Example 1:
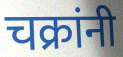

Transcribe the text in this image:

चक्रांनी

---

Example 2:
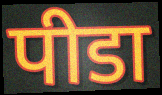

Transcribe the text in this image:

पीडा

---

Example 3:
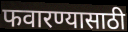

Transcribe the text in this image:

फवारण्यासाठी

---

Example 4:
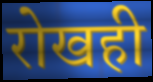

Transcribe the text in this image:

रोखही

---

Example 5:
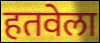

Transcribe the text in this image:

हतवेला